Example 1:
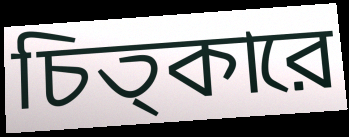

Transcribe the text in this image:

চিত্কারে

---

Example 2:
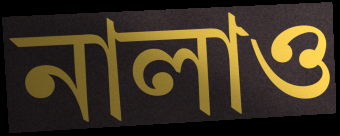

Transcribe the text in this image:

নালাও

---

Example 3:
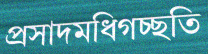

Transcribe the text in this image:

প্রসাদমধিগচ্ছতি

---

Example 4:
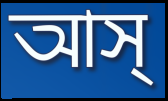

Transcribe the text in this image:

আস্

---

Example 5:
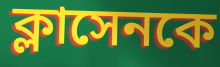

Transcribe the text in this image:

ক্লাসেনকে